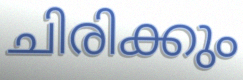
ചിരിക്കും